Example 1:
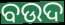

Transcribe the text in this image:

ବଉଦ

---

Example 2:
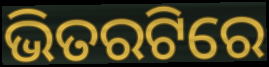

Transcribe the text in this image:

ଭିତରଟିରେ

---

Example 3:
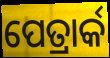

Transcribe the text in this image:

ପେତ୍ରାର୍କ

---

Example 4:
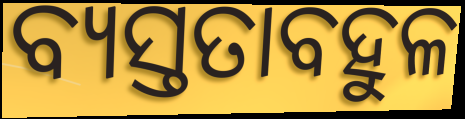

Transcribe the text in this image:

ବ୍ୟସ୍ତତାବହୁଳ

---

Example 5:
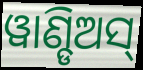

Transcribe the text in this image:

ୱାଣ୍ଡିଅସ୍